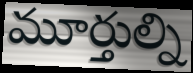
మూర్తుల్ని